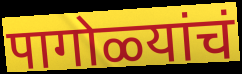
पागोळ्यांचं